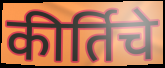
कीर्तिचे